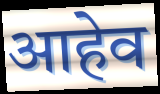
आहेव